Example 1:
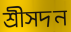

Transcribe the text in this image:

শ্রীসদন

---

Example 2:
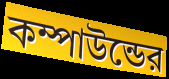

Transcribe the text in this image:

কম্পাউন্ডের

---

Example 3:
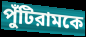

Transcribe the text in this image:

পুঁটিরামকে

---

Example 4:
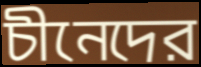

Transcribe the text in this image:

চীনেদের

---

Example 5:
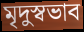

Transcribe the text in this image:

মৃদুস্বভাব